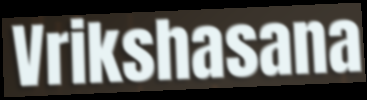
Vrikshasana